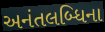
અનંતલબ્ધિના